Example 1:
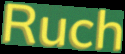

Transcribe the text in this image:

Ruch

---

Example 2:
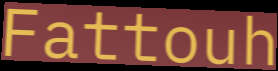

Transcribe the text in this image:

Fattouh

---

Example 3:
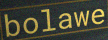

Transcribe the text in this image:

bolawe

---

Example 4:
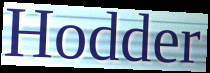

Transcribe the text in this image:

Hodder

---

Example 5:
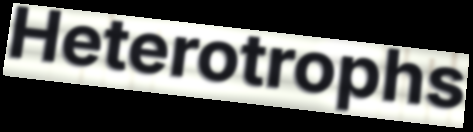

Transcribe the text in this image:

Heterotrophs